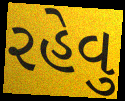
રહેવુ